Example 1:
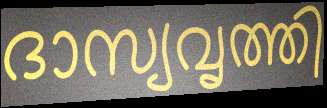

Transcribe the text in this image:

ദാസ്യവൃത്തി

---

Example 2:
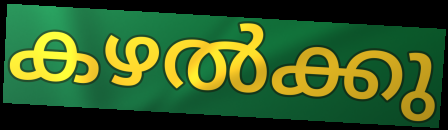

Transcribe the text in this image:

കഴൽക്കു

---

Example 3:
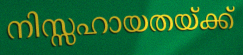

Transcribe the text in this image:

നിസ്സഹായതയ്ക്ക്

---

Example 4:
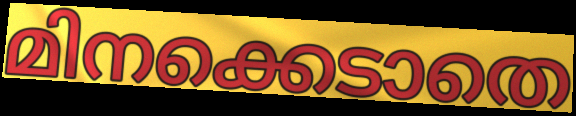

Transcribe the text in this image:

മിനക്കെടാതെ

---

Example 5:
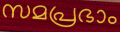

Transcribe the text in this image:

സമപ്രഭാം